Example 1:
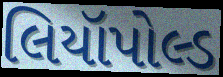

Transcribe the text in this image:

લિયૉપોલ્ડ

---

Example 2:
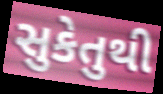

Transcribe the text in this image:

સુકેતુથી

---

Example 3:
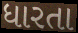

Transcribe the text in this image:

ધારતા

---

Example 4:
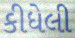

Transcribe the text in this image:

કીધેલી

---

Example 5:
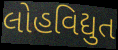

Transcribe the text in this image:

લોહવિદ્યુત